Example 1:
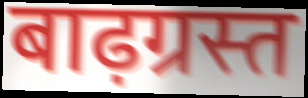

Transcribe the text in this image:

बाढ़ग्रस्त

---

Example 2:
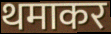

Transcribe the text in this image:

थमाकर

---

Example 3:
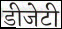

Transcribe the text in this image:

डीजेटी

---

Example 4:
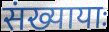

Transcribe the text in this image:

संख्यायाः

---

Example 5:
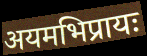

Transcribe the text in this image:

अयमभिप्रायः